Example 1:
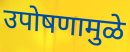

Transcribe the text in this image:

उपोषणामुळे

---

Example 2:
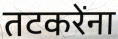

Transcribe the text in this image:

तटकरेंना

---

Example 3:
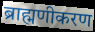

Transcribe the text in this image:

ब्राह्मणीकरण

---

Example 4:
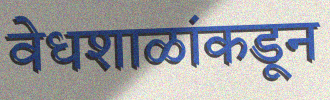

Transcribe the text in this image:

वेधशाळांकडून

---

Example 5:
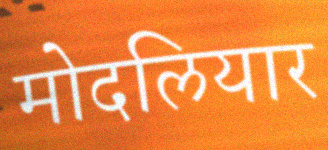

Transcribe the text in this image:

मोदलियार